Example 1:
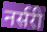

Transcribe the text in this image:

नर्सरी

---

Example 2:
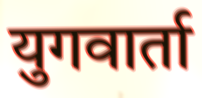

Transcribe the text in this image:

युगवार्ता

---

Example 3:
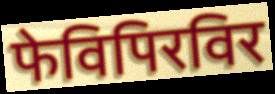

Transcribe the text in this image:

फेविपिरविर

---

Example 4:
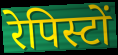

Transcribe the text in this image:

रेपिस्टों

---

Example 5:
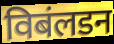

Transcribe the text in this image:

विबंलडन